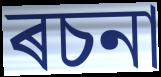
ৰচনা